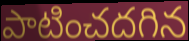
పాటించదగిన